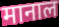
मानाल